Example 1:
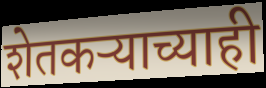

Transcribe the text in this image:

शेतकऱ्याच्याही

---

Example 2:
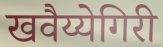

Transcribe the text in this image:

खवैय्येगिरी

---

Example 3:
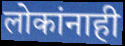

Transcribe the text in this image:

लोकांनाही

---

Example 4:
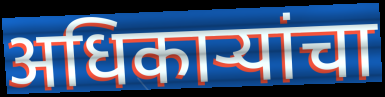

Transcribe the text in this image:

अधिकाऱ्यांचा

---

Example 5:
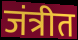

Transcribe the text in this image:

जंत्रीत